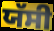
ਯੱਸੀ